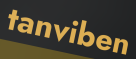
tanviben